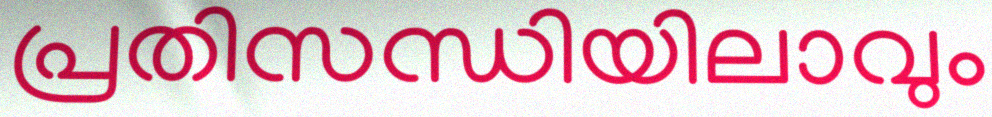
പ്രതിസന്ധിയിലാവും